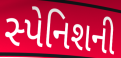
સ્પેનિશની